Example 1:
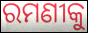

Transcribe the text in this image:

ରମଣୀକୁ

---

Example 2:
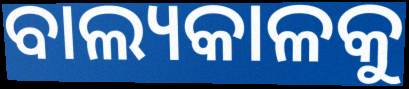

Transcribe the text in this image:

ବାଲ୍ୟକାଳକୁ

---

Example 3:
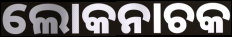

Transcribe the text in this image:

ଲୋକନାଚକ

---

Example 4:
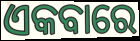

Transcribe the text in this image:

ଏକବାରେ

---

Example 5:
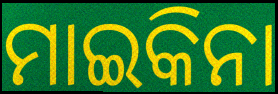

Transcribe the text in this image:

ମାଇକିନା